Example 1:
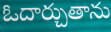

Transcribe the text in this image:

ఓదార్చుతాను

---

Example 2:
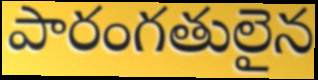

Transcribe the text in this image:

పారంగతులైన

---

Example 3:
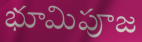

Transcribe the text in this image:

భూమిపూజ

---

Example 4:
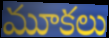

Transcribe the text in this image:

మూకలు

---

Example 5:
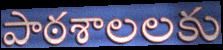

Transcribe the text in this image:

పాఠశాలలకు